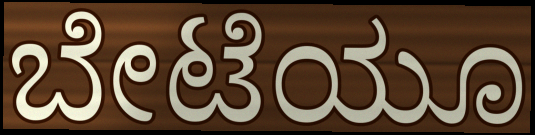
ಬೇಟೆಯೂ